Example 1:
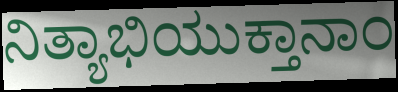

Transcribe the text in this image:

ನಿತ್ಯಾಭಿಯುಕ್ತಾನಾಂ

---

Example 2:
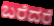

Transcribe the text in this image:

ಬರೆದರೆ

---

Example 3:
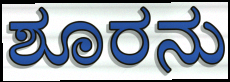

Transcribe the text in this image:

ಶೂರನು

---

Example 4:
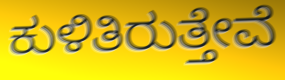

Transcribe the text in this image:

ಕುಳಿತಿರುತ್ತೇವೆ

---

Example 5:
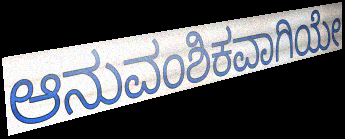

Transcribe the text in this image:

ಆನುವಂಶಿಕವಾಗಿಯೇ